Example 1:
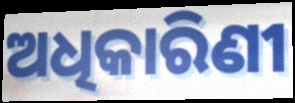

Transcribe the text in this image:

ଅଧିକାରିଣୀ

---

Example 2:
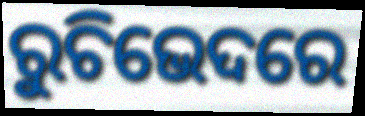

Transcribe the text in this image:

ରୁଚିଭେଦରେ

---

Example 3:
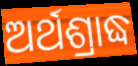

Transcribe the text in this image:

ଅର୍ଥଶ୍ରାଦ୍ଧ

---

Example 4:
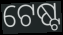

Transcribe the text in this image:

ଟେଷ୍ଟ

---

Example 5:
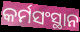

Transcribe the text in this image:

କର୍ମସଂସ୍ଥାନ